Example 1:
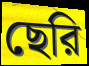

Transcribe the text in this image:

ছেরি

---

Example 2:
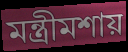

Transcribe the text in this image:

মন্ত্রীমশায়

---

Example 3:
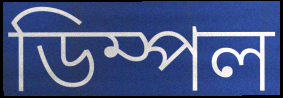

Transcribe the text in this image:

ডিম্পল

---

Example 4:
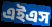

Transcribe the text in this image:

এইএস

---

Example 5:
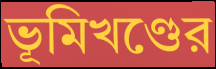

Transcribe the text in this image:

ভূমিখণ্ডের